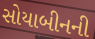
સોયાબીનની